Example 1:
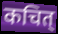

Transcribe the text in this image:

कचित्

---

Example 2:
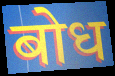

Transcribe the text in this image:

बोध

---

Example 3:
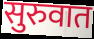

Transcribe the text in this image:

सुरुवात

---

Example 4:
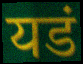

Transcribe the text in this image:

यडं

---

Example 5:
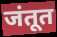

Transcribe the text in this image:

जंतूत